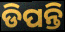
ଡିପନ୍ତି